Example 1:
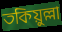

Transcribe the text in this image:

তকিয়ুল্লা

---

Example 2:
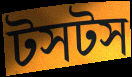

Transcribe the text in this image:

টসটস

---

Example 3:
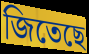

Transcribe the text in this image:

জিতেছে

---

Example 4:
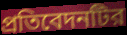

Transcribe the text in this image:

প্রতিবেদনটির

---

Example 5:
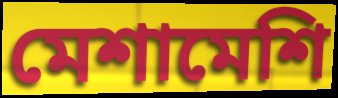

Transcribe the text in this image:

মেশামেশি